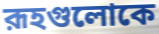
রূহগুলোকে